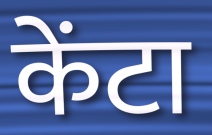
केंटा